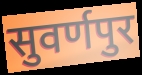
सुवर्णपुर